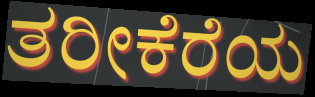
ತರೀಕೆರೆಯ